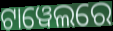
ଟାୱେଲରେ